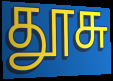
தூசு